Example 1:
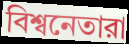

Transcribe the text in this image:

বিশ্বনেতারা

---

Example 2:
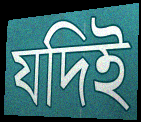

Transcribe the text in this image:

যদিই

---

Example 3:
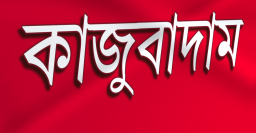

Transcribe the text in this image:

কাজুবাদাম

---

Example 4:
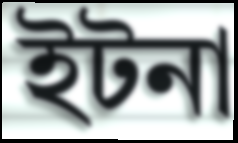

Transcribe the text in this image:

ইটনা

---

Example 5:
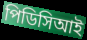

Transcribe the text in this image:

পিডিসিআই